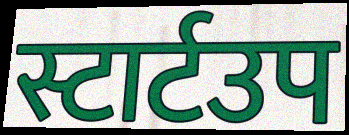
स्टार्टउप